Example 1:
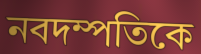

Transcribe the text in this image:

নবদম্পতিকে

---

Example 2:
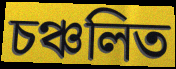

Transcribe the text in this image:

চঞ্চলিত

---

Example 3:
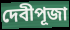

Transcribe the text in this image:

দেবীপূজা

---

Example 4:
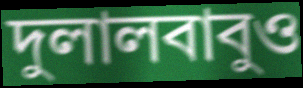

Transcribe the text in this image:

দুলালবাবুও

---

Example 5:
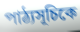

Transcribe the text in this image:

পাঠ্যসূচিকে